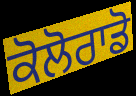
ਕੋਲੋਰਾਡੋ